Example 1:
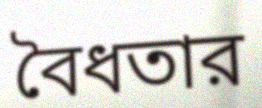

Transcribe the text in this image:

বৈধতার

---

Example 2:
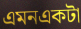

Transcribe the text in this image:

এমনএকটা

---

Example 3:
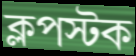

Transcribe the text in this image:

ক্লপস্টক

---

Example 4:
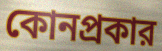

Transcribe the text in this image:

কোনপ্রকার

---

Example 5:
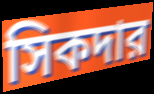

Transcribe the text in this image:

সিকদার